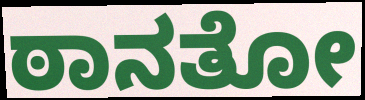
ಠಾನತೋ